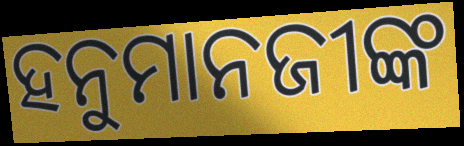
ହନୁମାନଜୀଙ୍କ